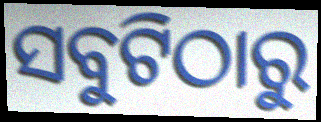
ସବୁଟିଠାରୁ